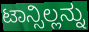
ಟಾನ್ಸಿಲ್ಲನ್ನು